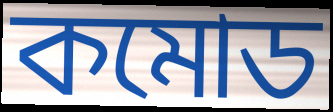
কমোড